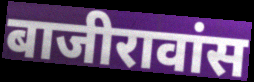
बाजीरावांस